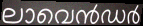
ലാവെൻഡർ